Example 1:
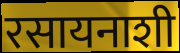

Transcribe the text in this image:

रसायनाशी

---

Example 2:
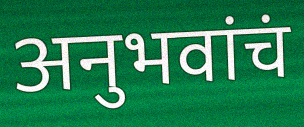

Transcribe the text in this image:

अनुभवांचं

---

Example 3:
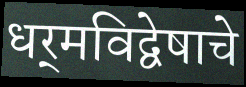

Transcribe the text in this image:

धर्मविद्वेषाचे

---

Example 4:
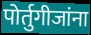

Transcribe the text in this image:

पोर्तुगीजांना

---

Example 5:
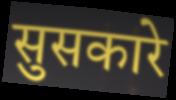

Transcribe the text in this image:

सुसकारे